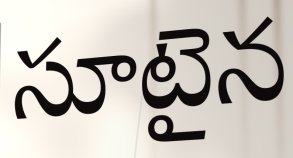
సూటైన